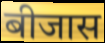
बीजास